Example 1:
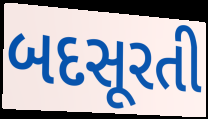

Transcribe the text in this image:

બદસૂરતી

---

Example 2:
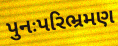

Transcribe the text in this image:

પુનઃપરિભ્રમણ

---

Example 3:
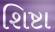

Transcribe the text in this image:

શિષ્ટા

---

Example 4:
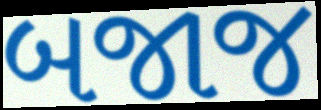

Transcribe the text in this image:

બજાજ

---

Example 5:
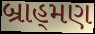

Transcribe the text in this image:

બ્રાહ્‌મણ